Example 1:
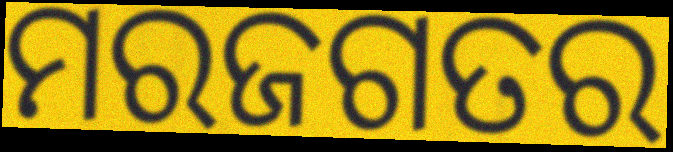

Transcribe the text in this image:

ମରଜଗତର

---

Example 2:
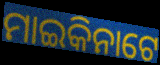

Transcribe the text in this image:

ମାଇକିନାଟେ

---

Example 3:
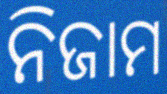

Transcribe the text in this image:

ନିଜାମ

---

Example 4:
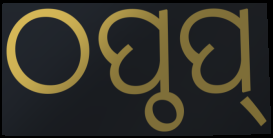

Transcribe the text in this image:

ଠପ୍ଠପ୍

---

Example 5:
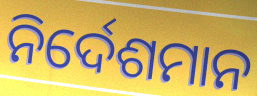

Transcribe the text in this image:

ନିର୍ଦେଶମାନ